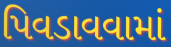
પિવડાવવામાં